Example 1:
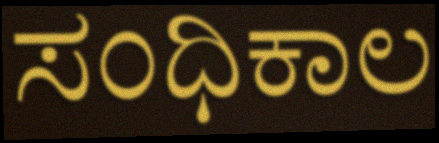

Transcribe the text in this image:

ಸಂಧಿಕಾಲ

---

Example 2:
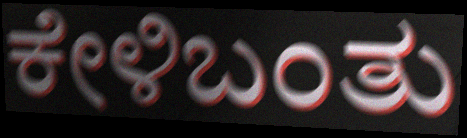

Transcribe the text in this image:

ಕೇಳಿಬಂತು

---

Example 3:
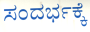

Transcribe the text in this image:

ಸಂದರ್ಭಕ್ಕೆ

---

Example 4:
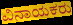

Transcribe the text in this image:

ವಿನಾಯಕರು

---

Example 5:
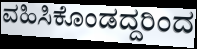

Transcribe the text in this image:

ವಹಿಸಿಕೊಂಡದ್ದರಿಂದ